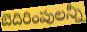
బెదిరింపులన్నీ